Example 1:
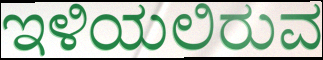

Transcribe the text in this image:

ಇಳಿಯಲಿರುವ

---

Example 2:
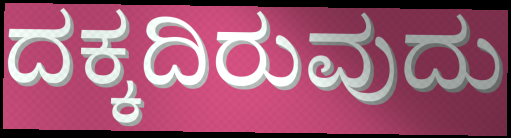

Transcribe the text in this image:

ದಕ್ಕದಿರುವುದು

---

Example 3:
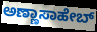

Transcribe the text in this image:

ಅಣ್ಣಾಸಾಹೇಬ್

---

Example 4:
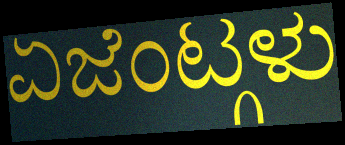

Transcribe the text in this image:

ಏಜೆಂಟ್ಗಳು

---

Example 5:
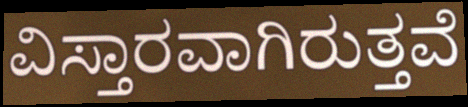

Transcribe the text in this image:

ವಿಸ್ತಾರವಾಗಿರುತ್ತವೆ